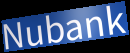
Nubank